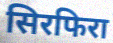
सिरफिरा